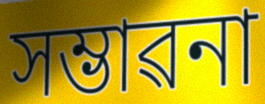
সম্ভাৱনা